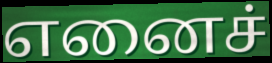
எனைச்